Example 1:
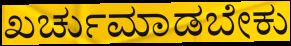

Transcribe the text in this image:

ಖರ್ಚುಮಾಡಬೇಕು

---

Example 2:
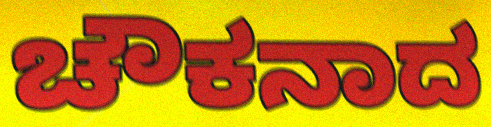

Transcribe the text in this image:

ಚೌಕನಾದ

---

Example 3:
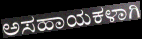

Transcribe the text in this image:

ಅಸಹಾಯಕಳಾಗಿ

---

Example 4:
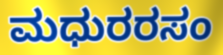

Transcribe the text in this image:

ಮಧುರರಸಂ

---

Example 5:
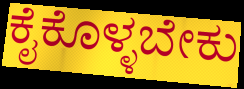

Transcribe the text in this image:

ಕೈಕೊಳ್ಳಬೇಕು